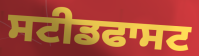
ਸਟੀਡਫਾਸਟ